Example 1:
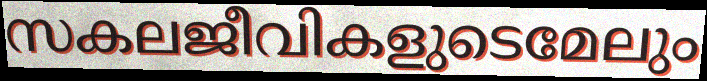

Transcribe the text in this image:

സകലജീവികളുടെമേലും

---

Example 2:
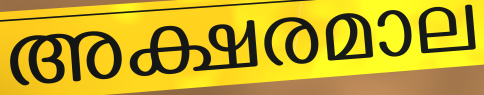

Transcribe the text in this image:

അക്ഷരമാല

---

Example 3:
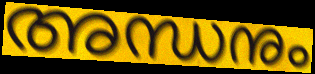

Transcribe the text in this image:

അന്ധനും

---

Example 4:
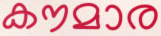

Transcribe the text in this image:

കൗമാര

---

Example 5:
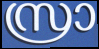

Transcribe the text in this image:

സ്രാ